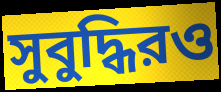
সুবুদ্ধিরও